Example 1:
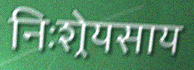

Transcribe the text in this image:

निःश्रेयसाय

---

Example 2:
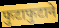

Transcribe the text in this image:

फुटाफुटाने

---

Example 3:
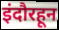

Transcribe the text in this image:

इंदौरहून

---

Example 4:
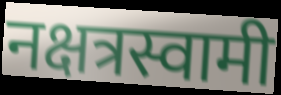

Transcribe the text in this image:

नक्षत्रस्वामी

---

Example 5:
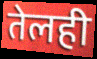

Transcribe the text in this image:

तेलही